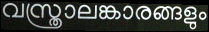
വസ്ത്രാലങ്കാരങ്ങളും